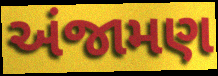
અંજામણ